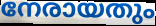
നേരായതും